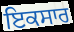
ਇਕਸਾਰ